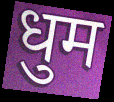
धुम